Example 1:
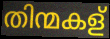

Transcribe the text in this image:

തിന്മകള്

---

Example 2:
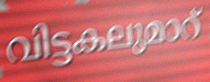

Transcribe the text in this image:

വിട്ടകലുമാറ്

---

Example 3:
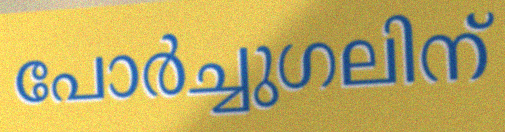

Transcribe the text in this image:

പോർച്ചുഗലിന്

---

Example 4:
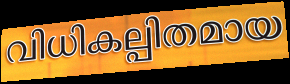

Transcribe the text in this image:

വിധികല്പിതമായ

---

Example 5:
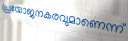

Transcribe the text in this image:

പ്രയോജനകരവുമാണെന്ന്